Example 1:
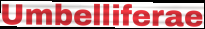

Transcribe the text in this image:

Umbelliferae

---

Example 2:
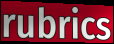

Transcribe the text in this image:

rubrics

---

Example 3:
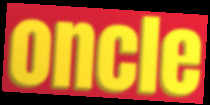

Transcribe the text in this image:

oncle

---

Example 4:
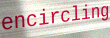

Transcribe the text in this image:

encircling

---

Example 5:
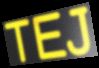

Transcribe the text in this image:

TEJ